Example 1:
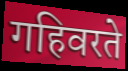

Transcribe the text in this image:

गहिवरते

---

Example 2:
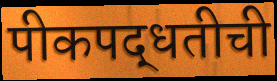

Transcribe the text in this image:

पीकपद्धतीची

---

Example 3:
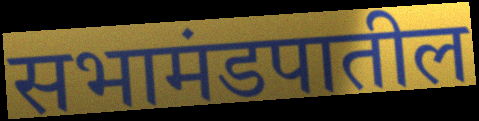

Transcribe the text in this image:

सभामंडपातील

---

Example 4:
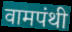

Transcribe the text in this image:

वामपंथी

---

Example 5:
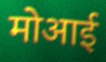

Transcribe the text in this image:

मोआई